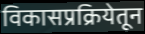
विकासप्रक्रियेतून